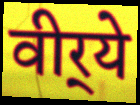
वीर्ये